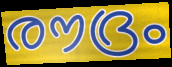
രൗദ്രം